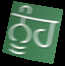
ਨੂੰਹ